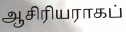
ஆசிரியராகப்